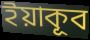
ইয়াকূব